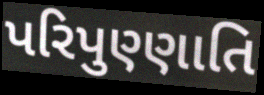
પરિપુણ્ણાતિ